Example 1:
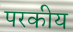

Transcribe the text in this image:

परकीय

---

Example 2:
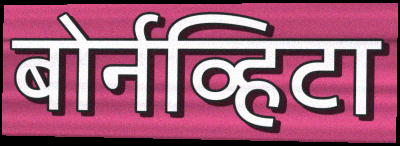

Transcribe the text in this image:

बोर्नव्हिटा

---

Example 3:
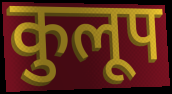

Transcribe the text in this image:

कुलूप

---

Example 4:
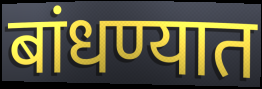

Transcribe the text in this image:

बांधण्‍यात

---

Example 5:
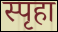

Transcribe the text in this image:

स्पृहा